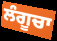
ਲੰਗੂਚਾ